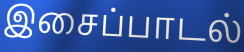
இசைப்பாடல்